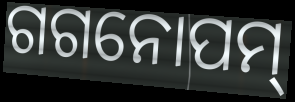
ଗଗନୋପମ୍